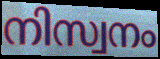
നിസ്വനം